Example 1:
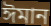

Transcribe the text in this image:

ঈমান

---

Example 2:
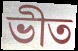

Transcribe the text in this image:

ভীত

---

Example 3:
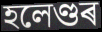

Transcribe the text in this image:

হলেণ্ডৰ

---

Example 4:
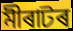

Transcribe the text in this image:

মীৰাটৰ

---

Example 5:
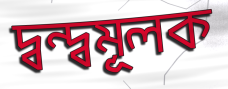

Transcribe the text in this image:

দ্বন্দ্বমূলক